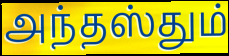
அந்தஸ்தும்